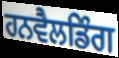
ਹਨਵੈਲਡਿੰਗ